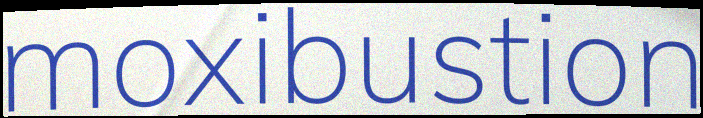
moxibustion